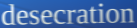
desecration